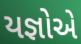
યજ્ઞોએ